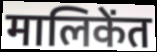
मालिकेंत